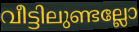
വീട്ടിലുണ്ടല്ലോ